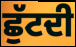
ਛੁੱਟਦੀ